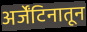
अर्जेंटिनातून